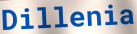
Dillenia